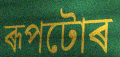
ৰূপটোৰ